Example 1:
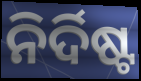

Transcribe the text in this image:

ନିର୍ଦିଷ୍ଟ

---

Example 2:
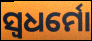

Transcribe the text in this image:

ସ୍ୱଧର୍ମୋ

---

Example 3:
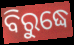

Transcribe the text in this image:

ବିରୁଦ୍ଧେ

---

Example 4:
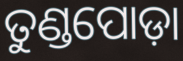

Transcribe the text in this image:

ତୁଣ୍ଡପୋଡ଼ା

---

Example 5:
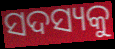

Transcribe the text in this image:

ସଦସ୍ୟକୁ